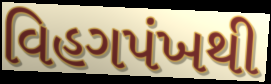
વિહગપંખથી